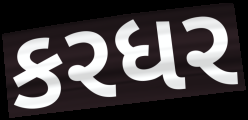
કરધર